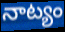
నాట్యం